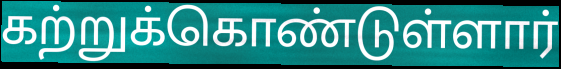
கற்றுக்கொண்டுள்ளார்